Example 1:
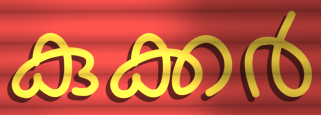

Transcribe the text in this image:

കുക്കർ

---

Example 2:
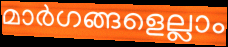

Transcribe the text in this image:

മാർഗങ്ങളെല്ലാം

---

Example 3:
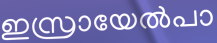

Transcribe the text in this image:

ഇസ്രായേൽപാ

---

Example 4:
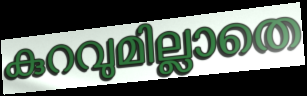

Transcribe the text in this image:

കുറവുമില്ലാതെ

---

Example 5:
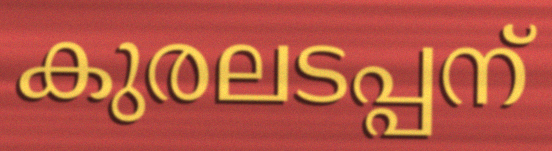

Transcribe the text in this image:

കുരലടപ്പന്